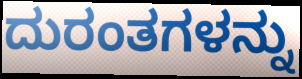
ದುರಂತಗಳನ್ನು